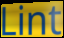
Lint